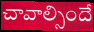
చావాల్సిందే